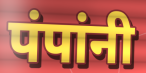
पंपांनी